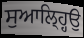
ਸੁਆਲ੍ਹ੍ਹਿਉ